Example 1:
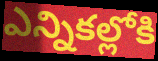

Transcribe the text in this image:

ఎన్నికల్లోకి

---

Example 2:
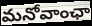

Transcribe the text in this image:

మనోవాంఛా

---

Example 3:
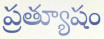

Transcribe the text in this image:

ప్రత్యూషం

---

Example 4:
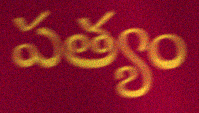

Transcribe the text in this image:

పత్యం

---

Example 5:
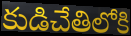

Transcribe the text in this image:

కుడిచేతిలోకి